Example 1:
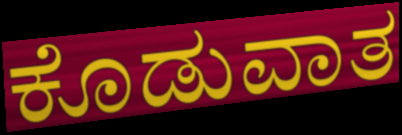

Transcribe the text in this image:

ಕೊಡುವಾತ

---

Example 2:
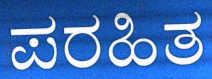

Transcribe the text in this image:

ಪರಹಿತ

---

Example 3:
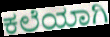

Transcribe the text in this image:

ಕಲೆಯಾಗಿ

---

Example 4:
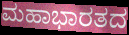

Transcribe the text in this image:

ಮಹಾಭಾರತದ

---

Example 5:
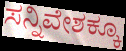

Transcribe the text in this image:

ಸನ್ನಿವೇಶಕ್ಕೂ